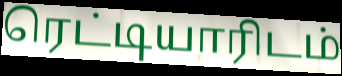
ரெட்டியாரிடம்